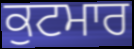
ਕੁਟਮਾਰ